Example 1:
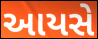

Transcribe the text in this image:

આયસે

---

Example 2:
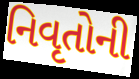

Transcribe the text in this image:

નિવૃતોની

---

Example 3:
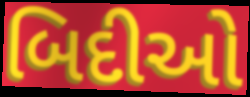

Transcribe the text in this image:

બિદીઓ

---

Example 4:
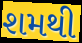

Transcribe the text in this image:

શમથી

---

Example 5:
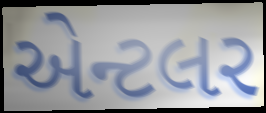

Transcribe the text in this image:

એન્ટલર